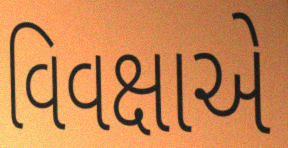
વિવક્ષાએ